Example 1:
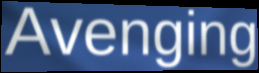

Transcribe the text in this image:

Avenging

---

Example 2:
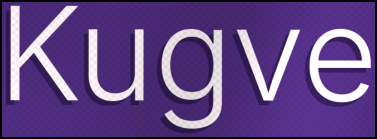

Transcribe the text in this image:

Kugve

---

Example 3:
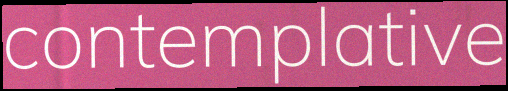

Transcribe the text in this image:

contemplative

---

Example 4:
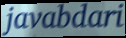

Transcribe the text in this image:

javabdari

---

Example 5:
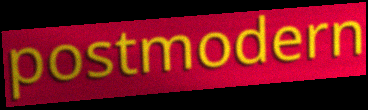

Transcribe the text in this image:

postmodern